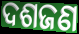
ଦଶଜଣ